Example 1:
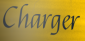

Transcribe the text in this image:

Charger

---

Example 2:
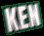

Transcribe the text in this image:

KEN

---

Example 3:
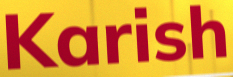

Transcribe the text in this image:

Karish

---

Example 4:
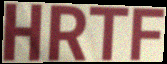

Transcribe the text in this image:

HRTF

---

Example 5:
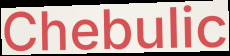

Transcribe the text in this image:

Chebulic